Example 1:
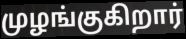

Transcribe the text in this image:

முழங்குகிறார்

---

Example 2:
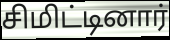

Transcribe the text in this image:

சிமிட்டினார்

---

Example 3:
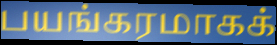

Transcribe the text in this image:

பயங்கரமாகக்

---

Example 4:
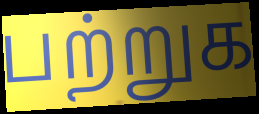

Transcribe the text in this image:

பற்றுக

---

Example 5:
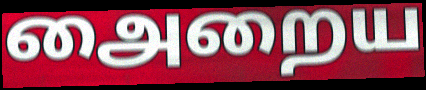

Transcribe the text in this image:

அைறைய